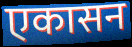
एकासन